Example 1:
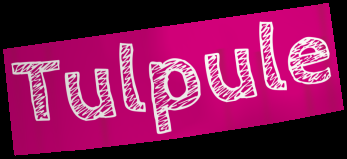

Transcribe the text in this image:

Tulpule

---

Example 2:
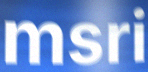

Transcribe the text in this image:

msri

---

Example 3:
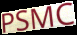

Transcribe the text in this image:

PSMC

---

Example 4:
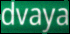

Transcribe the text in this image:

dvaya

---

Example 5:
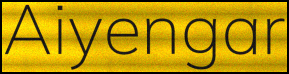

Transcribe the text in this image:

Aiyengar